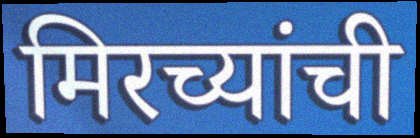
मिरच्यांची